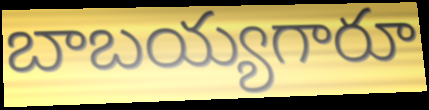
బాబయ్యగారూ